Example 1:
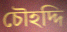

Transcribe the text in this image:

চৌহদ্দি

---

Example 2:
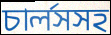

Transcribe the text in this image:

চার্লসসহ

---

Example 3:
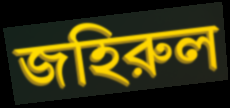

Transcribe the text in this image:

জহিরুল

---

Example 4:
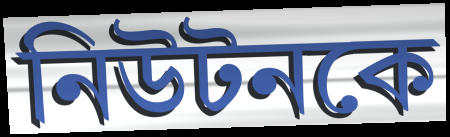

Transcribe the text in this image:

নিউটনকে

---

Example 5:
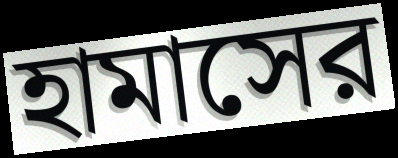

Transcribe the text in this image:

হামাসের